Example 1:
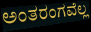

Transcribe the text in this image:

ಅಂತರಂಗವೆಲ್ಲ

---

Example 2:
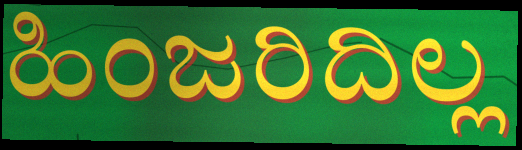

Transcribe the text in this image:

ಹಿಂಜರಿದಿಲ್ಲ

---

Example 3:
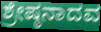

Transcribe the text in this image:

ಶ್ರೇಷ್ಠನಾದವ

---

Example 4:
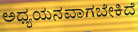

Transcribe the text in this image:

ಅಧ್ಯಯನವಾಗಬೇಕಿದೆ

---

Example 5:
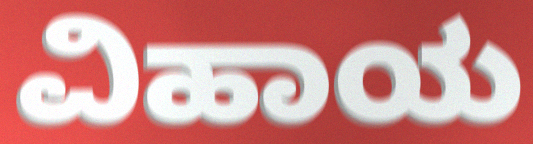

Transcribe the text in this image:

ವಿಹಾಯ